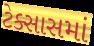
ટેક્સાસમાં